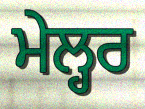
ਮੇਲ੍ਹਰ